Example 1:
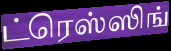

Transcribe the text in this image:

ட்ரெஸ்ஸிங்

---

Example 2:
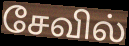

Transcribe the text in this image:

சேவில்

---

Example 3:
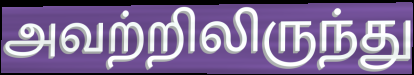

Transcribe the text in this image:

அவற்றிலிருந்து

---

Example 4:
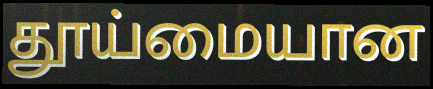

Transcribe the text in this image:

தூய்மையான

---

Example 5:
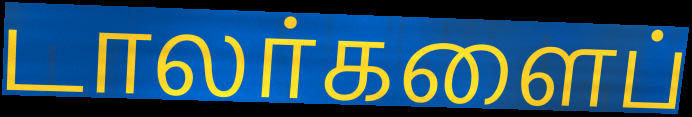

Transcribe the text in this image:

டாலர்களைப்